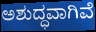
ಅಶುದ್ಧವಾಗಿವೆ